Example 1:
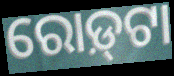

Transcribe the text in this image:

ରୋଡ଼୍‌ଟା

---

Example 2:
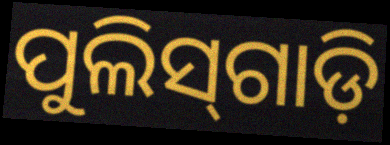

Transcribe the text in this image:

ପୁଲିସ୍‌ଗାଡ଼ି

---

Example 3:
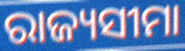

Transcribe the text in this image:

ରାଜ୍ୟସୀମା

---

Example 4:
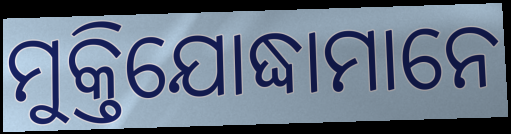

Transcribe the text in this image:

ମୁକ୍ତିଯୋଦ୍ଧାମାନେ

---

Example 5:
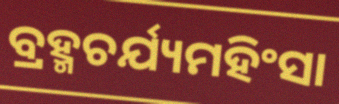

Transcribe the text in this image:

ବ୍ରହ୍ମଚର୍ଯ୍ୟମହିଂସା